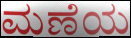
ಮಣೆಯ